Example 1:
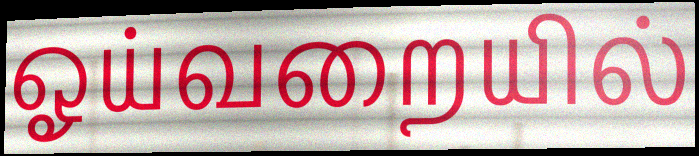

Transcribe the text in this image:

ஓய்வறையில்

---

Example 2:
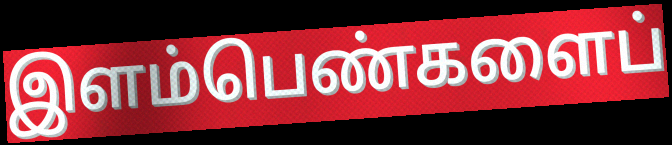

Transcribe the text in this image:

இளம்பெண்களைப்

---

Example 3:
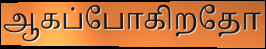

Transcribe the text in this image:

ஆகப்போகிறதோ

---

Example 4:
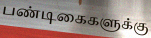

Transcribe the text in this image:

பண்டிகைகளுக்கு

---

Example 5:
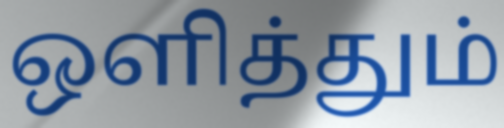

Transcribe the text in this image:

ஒளித்தும்